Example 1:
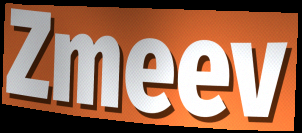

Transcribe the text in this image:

Zmeev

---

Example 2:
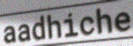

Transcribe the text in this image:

aadhiche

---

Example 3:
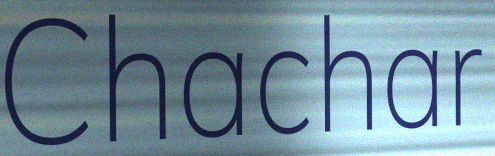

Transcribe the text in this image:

Chachar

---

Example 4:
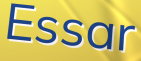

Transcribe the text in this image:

Essar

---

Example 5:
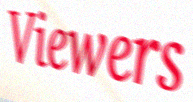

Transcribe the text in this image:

Viewers